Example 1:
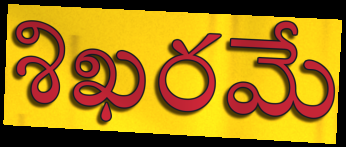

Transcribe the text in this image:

శిఖరమే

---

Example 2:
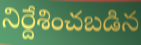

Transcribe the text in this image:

నిర్దేశించబడిన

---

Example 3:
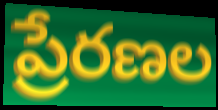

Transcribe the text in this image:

ప్రేరణల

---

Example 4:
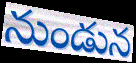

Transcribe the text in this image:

నుండున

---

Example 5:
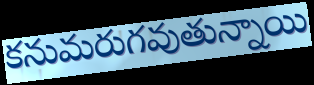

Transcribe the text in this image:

కనుమరుగవుతున్నాయి